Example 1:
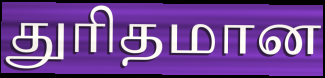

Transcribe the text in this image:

துரிதமான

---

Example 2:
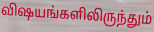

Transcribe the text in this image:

விஷயங்களிலிருந்தும்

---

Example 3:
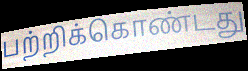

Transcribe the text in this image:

பற்றிக்கொண்டது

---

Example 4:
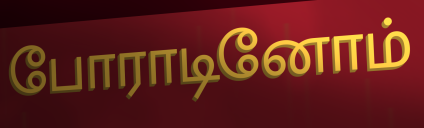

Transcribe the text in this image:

போராடினோம்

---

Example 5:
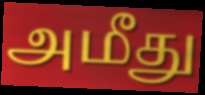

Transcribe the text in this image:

அமீது